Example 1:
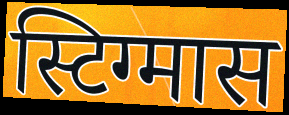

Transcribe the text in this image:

स्टिग्मास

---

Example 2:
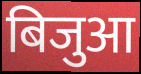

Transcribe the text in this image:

बिजुआ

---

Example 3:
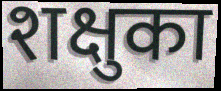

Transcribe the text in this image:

शक्षुका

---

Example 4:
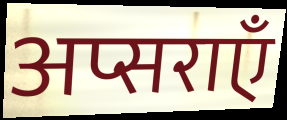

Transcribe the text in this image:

अप्सराएँ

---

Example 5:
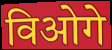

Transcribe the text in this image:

विओगे